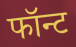
फॉन्ट